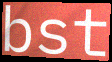
bst